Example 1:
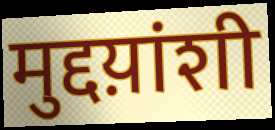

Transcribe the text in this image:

मुद्दय़ांशी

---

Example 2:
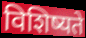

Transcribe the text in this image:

विशिष्यते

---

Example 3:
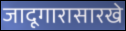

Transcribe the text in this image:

जादूगारासारखे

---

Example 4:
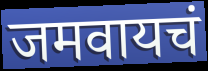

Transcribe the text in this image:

जमवायचं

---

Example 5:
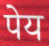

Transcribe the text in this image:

पेय